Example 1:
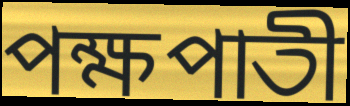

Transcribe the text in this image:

পক্ষপাতী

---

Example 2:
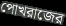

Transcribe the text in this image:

পোখরাজের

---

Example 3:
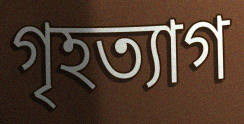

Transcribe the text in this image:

গৃহত্যাগ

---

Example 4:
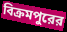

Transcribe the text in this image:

বিক্রমপুরের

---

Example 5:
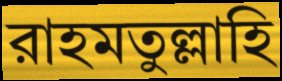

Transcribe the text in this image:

রাহমতুল্লাহি